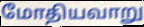
மோதியவாறு